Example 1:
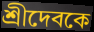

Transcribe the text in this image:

শ্রীদেবকে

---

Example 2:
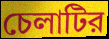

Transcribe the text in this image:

চেলাটির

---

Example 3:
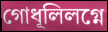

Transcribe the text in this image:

গোধূলিলগ্নে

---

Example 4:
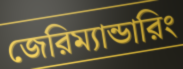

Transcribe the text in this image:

জেরিম্যান্ডারিং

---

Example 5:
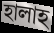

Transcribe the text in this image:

হালাহ